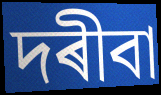
দৰীবা